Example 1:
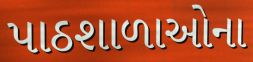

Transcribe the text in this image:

પાઠશાળાઓના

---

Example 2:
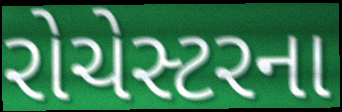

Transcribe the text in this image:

રોચેસ્ટરના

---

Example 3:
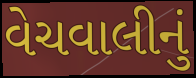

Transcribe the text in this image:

વેચવાલીનું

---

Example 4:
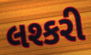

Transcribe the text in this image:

લશ્કરી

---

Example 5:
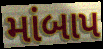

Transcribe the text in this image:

માંબાપ